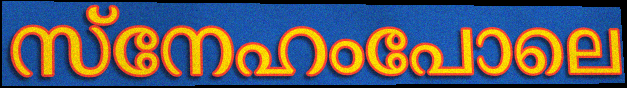
സ്നേഹംപോലെ